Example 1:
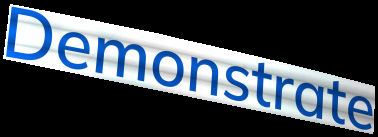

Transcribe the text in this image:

Demonstrate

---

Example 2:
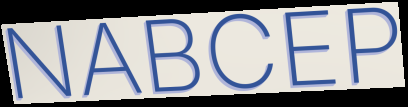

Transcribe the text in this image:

NABCEP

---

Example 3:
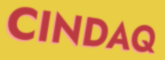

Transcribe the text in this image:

CINDAQ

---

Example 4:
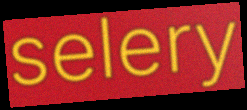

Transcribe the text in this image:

selery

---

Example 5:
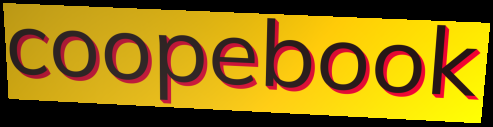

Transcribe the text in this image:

coopebook